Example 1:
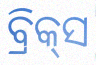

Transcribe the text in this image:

ବ୍ରିକ୍‌ସ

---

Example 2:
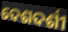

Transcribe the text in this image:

ଦେଶଦର୍ଶୀ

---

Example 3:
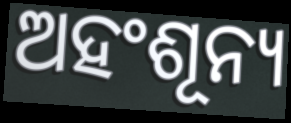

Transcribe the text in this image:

ଅହଂଶୂନ୍ୟ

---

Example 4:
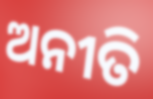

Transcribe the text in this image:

ଅନୀତି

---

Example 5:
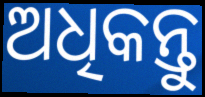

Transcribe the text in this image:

ଅଧିକନ୍ତୁ